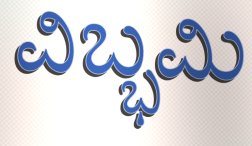
ವಿಬ್ಭಮಿ